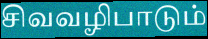
சிவவழிபாடும்